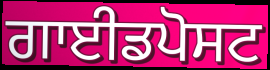
ਗਾਈਡਪੋਸਟ